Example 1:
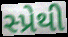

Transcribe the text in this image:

સ્પ્રેથી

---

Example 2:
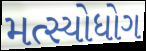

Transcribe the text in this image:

મત્સ્યોધોગ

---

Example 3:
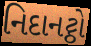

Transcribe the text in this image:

નિદાનટ્ઠો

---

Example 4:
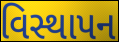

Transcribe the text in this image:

વિસ્થાપન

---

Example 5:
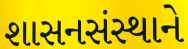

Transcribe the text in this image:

શાસનસંસ્થાને